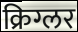
क्रिग्लर